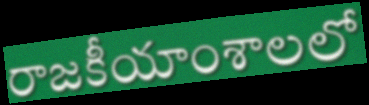
రాజకీయాంశాలలో